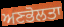
ਅਣਭੋਲਤਾ